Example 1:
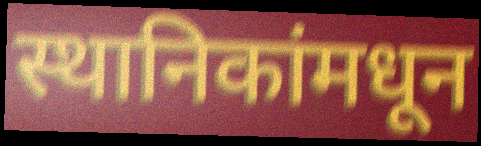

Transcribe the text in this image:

स्थानिकांमधून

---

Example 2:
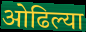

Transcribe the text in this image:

ओढिल्या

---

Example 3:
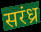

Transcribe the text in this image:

सरंध्र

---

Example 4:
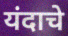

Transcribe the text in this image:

यंदाचे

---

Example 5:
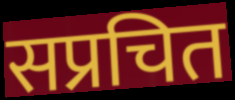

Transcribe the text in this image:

सप्रचित